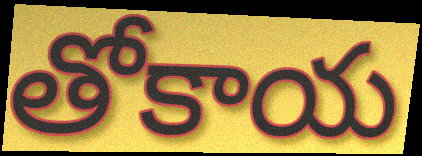
తోకాయ